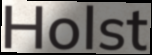
Holst